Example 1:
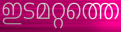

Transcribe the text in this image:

ഇടമറ്റത്തെ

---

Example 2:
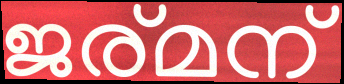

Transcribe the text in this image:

ജര്മന്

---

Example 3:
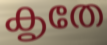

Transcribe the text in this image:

കൃതേ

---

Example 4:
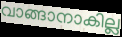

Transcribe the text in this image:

വാങ്ങാനാകില്ല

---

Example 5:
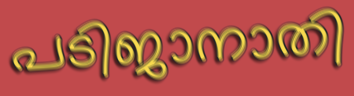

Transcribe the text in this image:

പടിജാനാതി